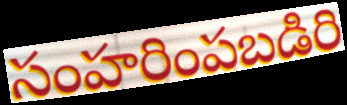
సంహరింపబడిరి